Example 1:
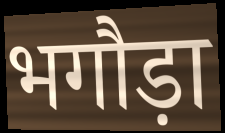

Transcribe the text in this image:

भगौड़ा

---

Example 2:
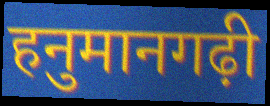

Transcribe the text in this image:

हनुमानगढ़ी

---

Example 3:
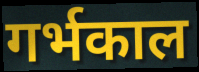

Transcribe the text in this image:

गर्भकाल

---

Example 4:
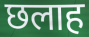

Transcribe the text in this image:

छलाह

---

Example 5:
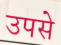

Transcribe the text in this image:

उपसे